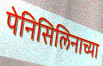
पेनिसिलिनाच्या